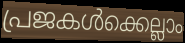
പ്രജകൾക്കെല്ലാം